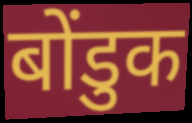
बोंडुक